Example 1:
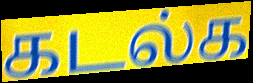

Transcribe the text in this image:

கடல்க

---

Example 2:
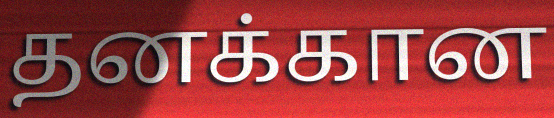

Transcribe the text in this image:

தனக்கான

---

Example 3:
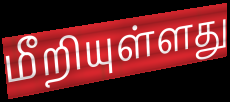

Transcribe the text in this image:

மீறியுள்ளது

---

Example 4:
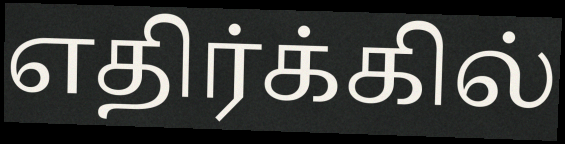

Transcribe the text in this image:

எதிர்க்கில்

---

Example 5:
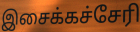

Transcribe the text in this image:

இசைக்கச்சேரி